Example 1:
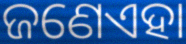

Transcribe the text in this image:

ଜଣେଏହା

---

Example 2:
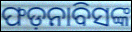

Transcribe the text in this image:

ଫଡ଼ନାବିସଙ୍କ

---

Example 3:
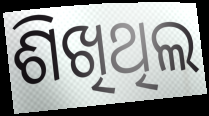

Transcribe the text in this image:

ଶିଖିଥିଲ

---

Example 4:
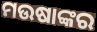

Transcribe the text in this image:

ମଉଷାଙ୍କର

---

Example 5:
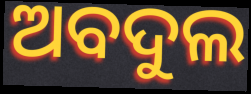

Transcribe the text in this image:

ଅବଦୁଲ